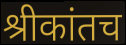
श्रीकांतच